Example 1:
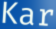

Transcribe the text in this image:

Kar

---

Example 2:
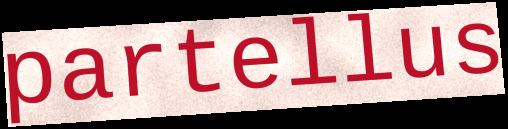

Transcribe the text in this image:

partellus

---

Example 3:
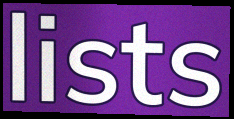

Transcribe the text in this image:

lists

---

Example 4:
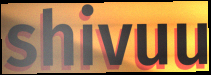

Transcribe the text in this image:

shivuu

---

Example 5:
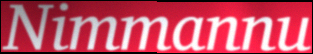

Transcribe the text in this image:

Nimmannu